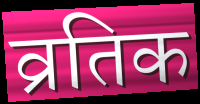
व्रतिक